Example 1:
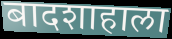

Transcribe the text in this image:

बादशाहाला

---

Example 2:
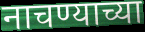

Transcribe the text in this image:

नाचण्याच्या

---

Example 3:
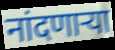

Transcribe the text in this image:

नांदणाऱ्या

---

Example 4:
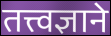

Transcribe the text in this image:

तत्त्वज्ञाने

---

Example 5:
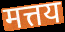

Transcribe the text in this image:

मत्तय